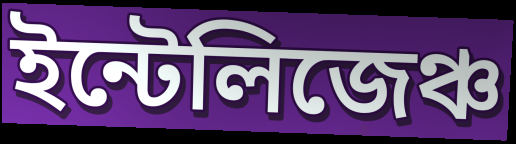
ইন্টেলিজেঞ্চ